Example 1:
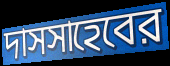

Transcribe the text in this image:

দাসসাহেবের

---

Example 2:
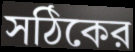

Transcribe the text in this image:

সঠিকের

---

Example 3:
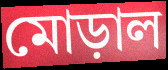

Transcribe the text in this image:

মোড়াল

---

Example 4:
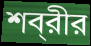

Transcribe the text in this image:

শব্‌রীর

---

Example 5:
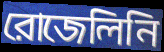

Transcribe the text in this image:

রোজেলিনি